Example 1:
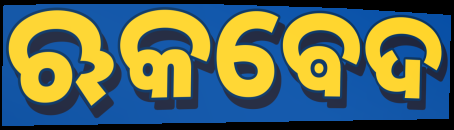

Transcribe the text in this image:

ଋକଵେଦ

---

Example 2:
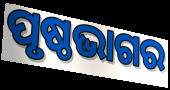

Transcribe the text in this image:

ପୃଷ୍ଠଭାଗର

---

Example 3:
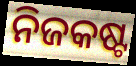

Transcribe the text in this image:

ନିଜକଷ୍ଟ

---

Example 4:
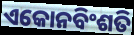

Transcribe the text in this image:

ଏକୋନବିଂଶତି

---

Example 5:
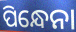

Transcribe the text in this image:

ପିନ୍ଧେନା